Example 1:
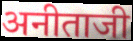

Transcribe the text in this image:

अनीताजी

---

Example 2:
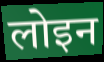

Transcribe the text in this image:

लोइन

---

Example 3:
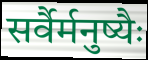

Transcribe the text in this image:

सर्वैर्मनुष्यैः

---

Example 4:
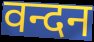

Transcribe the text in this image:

वन्दन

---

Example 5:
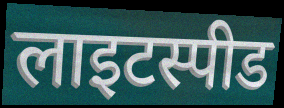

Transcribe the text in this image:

लाइटस्पीड